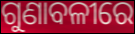
ଗୁଣାବଳୀରେ